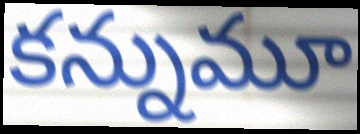
కన్నుమూ